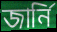
জার্নি